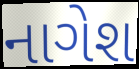
નાગેશ